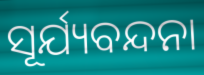
ସୂର୍ଯ୍ୟବନ୍ଦନା